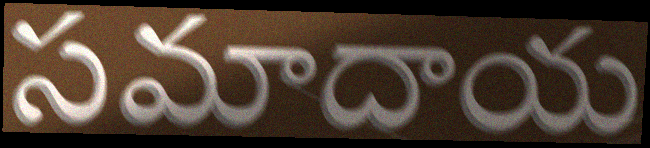
సమాదాయ